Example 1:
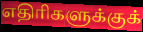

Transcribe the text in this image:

எதிரிகளுக்குக்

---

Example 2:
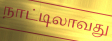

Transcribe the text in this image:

நாட்டிலாவது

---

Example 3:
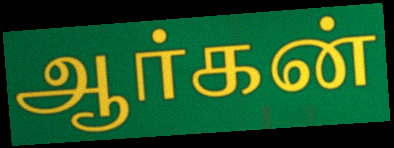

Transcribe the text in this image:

ஆர்கன்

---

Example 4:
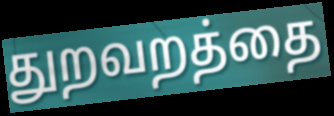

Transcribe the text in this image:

துறவறத்தை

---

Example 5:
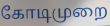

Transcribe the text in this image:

கோடிமுறை